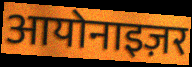
आयोनाइज़र